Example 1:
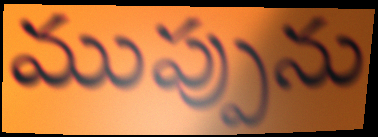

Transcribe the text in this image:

ముప్పును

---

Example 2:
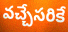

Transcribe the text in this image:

వచ్చేసరికే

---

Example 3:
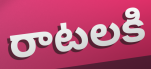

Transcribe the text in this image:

రాటలకి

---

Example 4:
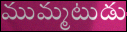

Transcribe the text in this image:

ముమ్మటుడు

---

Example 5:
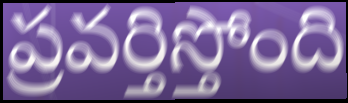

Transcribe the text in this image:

ప్రవర్తిస్తోంది